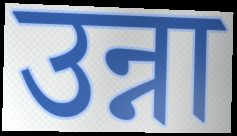
उन्ना